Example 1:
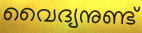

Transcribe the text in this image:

വൈദ്യനുണ്ട്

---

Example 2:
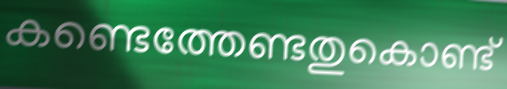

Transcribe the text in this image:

കണ്ടെത്തേണ്ടതുകൊണ്ട്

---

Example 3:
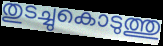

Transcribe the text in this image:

തുടച്ചുകൊടുത്തു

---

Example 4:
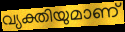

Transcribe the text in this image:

വ്യക്തിയുമാണ്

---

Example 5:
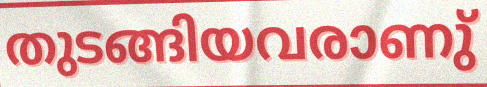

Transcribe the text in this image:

തുടങ്ങിയവരാണു്